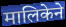
मालिकेने